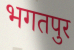
भगतपुर